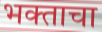
भक्ताचा